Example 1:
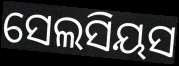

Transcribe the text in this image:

ସେଲସିୟସ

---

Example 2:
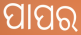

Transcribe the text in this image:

ପାପର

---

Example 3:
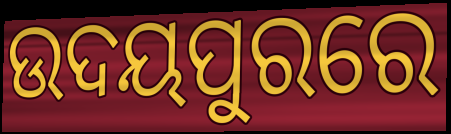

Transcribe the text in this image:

ଉଦୟପୁରରେ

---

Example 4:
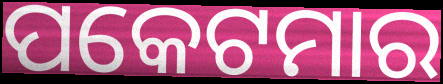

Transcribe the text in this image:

ପକେଟମାର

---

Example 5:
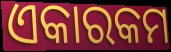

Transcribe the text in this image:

ଏକାରକମ